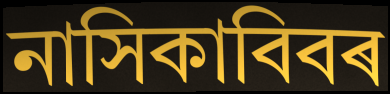
নাসিকাবিবৰ